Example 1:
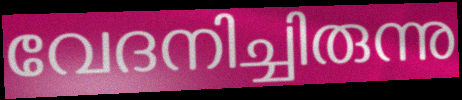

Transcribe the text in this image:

വേദനിച്ചിരുന്നു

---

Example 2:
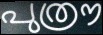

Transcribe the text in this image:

പുത്രൗ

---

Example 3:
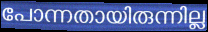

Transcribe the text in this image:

പോന്നതായിരുന്നില്ല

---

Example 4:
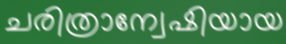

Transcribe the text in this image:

ചരിത്രാന്വേഷിയായ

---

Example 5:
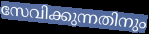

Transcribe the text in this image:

സേവിക്കുന്നതിനും